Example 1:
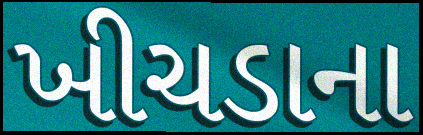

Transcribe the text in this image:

ખીચડાના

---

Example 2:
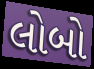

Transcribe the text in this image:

લોબો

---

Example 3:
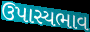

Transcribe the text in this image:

ઉપાસ્યભાવ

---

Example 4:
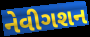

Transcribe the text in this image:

નેવીગશન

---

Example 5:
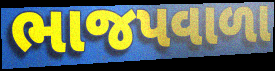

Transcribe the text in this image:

ભાજપવાળા